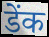
डेंक